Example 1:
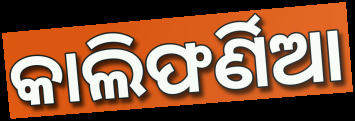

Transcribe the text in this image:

କାଲିଫର୍ଣିଆ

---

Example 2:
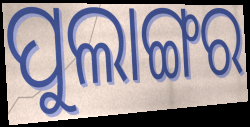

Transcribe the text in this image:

ପୁଲାଙ୍ଗର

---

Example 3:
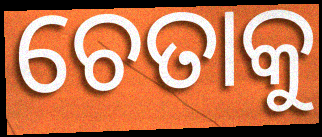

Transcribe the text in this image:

ଚେତାକୁ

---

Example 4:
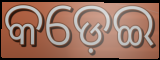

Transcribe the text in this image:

କଡ଼େଇ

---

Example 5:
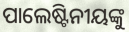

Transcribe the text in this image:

ପାଲେଷ୍ଟିନୀୟଙ୍କୁ